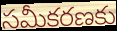
సమీకరణకు